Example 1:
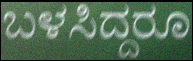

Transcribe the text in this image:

ಬಳಸಿದ್ದರೂ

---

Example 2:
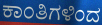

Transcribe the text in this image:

ಕಾಂತಿಗಳಿಂದ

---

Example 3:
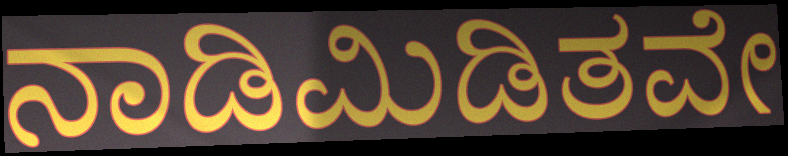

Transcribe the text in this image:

ನಾಡಿಮಿಡಿತವೇ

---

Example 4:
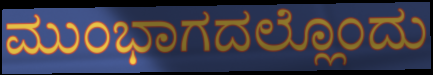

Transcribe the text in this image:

ಮುಂಭಾಗದಲ್ಲೊಂದು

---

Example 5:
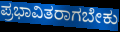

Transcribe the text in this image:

ಪ್ರಭಾವಿತರಾಗಬೇಕು